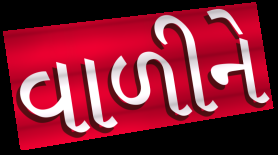
વાળીને